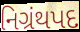
નિગ્રંથપદ